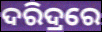
ଦରିଦ୍ରରେ